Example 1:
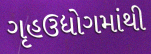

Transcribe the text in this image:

ગૃહઉદ્યોગમાંથી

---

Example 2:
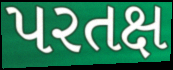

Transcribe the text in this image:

પરતક્ષ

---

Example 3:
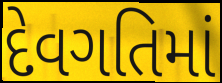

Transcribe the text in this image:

દેવગતિમાં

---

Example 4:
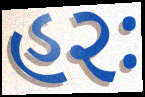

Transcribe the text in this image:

હરઃ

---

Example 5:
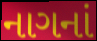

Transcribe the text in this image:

નાગનાં